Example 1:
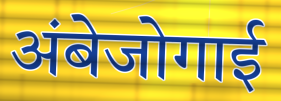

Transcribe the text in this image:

अंबेजोगाई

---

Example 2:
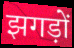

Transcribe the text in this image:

झगड़ों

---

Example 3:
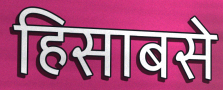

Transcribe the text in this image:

हिसाबसे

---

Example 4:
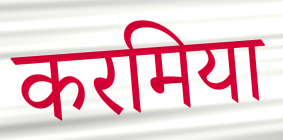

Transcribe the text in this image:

करमिया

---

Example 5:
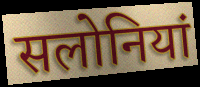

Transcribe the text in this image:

सलोनियां